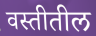
वस्तीतील